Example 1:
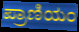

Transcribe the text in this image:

ಪ್ರಾಣಿಯಂ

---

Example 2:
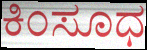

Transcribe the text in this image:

ಕಿಂಸೂಧ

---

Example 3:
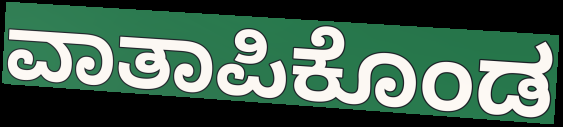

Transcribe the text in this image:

ವಾತಾಪಿಕೊಂಡ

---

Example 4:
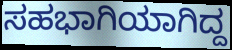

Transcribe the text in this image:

ಸಹಭಾಗಿಯಾಗಿದ್ದ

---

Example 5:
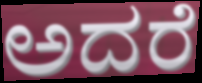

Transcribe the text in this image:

ಅದರೆ